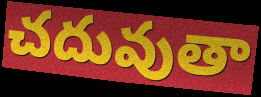
చదువుతా